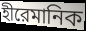
হীরেমানিক